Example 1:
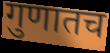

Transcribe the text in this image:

गुणातच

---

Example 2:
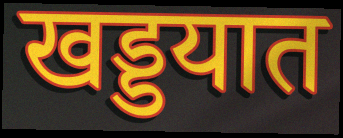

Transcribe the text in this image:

खड्डयात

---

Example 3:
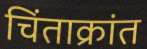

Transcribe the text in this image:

चिंताक्रांत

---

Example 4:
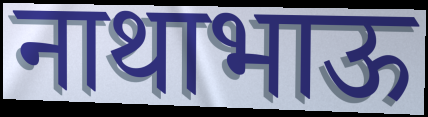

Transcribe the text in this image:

नाथाभाऊ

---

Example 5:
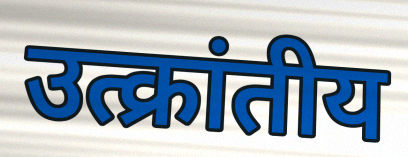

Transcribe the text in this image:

उत्क्रांतीय